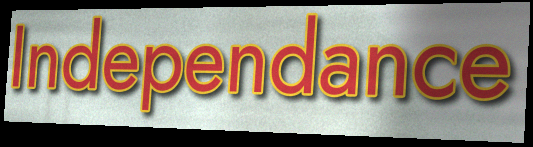
Independance